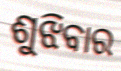
ଶୁଝିବାର